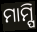
ମାମ୍ପି